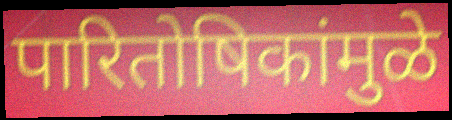
पारितोषिकांमुळे